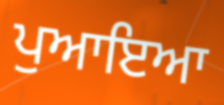
ਪੁਆਇਆ